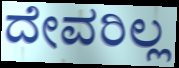
ದೇವರಿಲ್ಲ